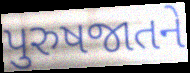
પુરુષજાતને